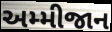
અમ્મીજાન